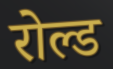
रोल्ड